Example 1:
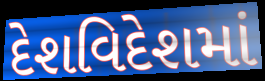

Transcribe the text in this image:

દેશવિદેશમાં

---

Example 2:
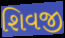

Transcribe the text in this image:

શિવજી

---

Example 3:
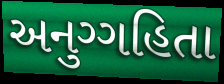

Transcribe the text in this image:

અનુગ્ગહિતા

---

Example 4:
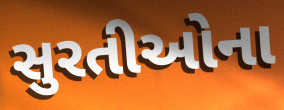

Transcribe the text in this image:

સુરતીઓના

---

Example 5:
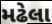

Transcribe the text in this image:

મઢેલા